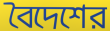
বৈদেশের